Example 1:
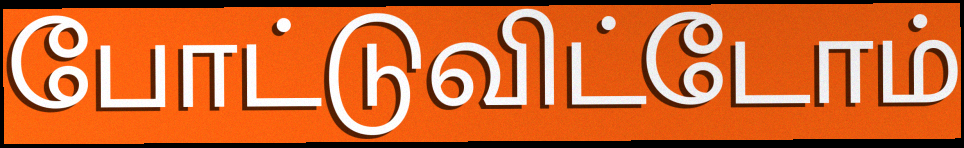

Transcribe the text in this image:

போட்டுவிட்டோம்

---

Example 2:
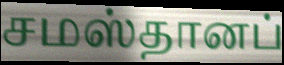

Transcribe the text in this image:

சமஸ்தானப்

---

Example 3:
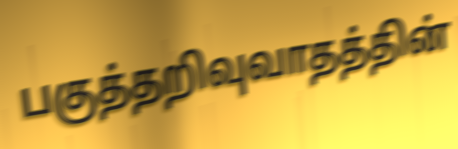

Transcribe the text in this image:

பகுத்தறிவுவாதத்தின்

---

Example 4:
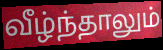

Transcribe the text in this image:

வீழ்ந்தாலும்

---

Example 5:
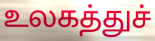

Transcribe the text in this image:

உலகத்துச்